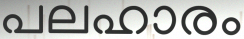
പലഹാരം